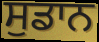
ਸੁਡਾਨ